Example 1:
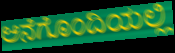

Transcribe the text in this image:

ಆನೆಗೊಂದಿಯಲ್ಲಿ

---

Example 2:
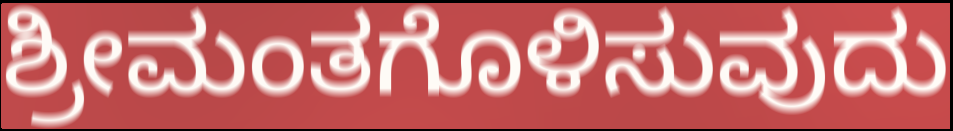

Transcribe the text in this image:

ಶ್ರೀಮಂತಗೊಳಿಸುವುದು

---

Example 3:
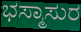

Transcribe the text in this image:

ಭಸ್ಮಾಸುರ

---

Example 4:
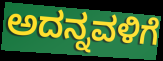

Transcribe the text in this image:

ಅದನ್ನವಳಿಗೆ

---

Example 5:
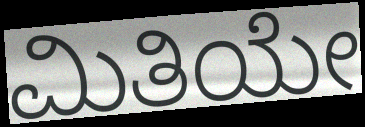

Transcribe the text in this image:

ಮಿತಿಯೇ